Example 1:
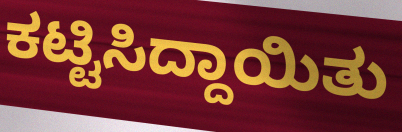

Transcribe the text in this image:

ಕಟ್ಟಿಸಿದ್ದಾಯಿತು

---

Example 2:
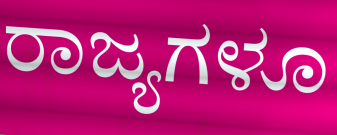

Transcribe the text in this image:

ರಾಜ್ಯಗಳೂ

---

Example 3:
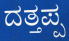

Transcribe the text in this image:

ದತ್ತಪ್ಪ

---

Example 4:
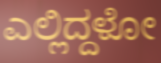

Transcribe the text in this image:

ಎಲ್ಲಿದ್ದಳೋ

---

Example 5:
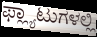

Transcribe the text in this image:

ಫ್ಲ್ಯಾಟುಗಳಲ್ಲಿ